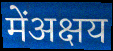
मेंअक्षय